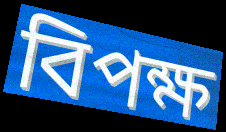
বিপক্ষ